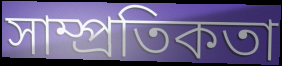
সাম্প্রতিকতা